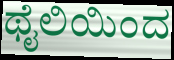
ಥೈಲಿಯಿಂದ